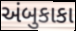
અંબુકાકા